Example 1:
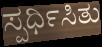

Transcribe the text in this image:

ಸ್ಪರ್ಧಿಸಿತು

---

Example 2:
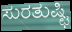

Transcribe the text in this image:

ಸುರತುಷ್ಟಿ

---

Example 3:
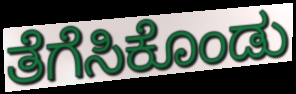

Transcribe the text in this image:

ತೆಗೆಸಿಕೊಂಡು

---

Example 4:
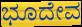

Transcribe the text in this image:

ಭೂದೇವ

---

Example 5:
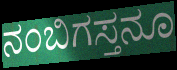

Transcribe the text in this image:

ನಂಬಿಗಸ್ತನೂ